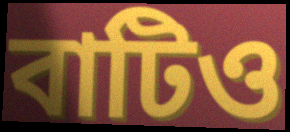
বাটিও